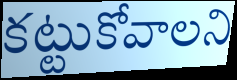
కట్టుకోవాలని